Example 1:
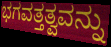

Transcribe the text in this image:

ಭಗವತ್ತತ್ವವನ್ನು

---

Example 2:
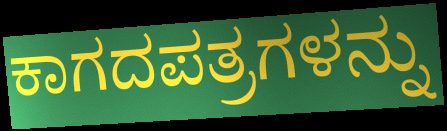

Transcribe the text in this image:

ಕಾಗದಪತ್ರಗಳನ್ನು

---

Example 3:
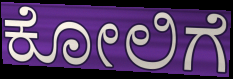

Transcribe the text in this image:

ಕೋಲಿಗೆ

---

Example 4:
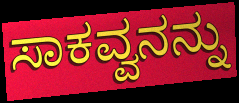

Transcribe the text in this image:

ಸಾಕವ್ವನನ್ನು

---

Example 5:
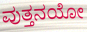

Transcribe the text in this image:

ವುತ್ತನಯೋ